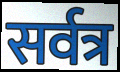
सर्वत्र